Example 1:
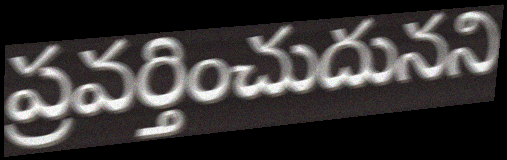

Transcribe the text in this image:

ప్రవర్తించుదునని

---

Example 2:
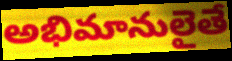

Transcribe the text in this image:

అభిమానులైతే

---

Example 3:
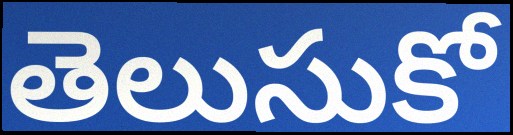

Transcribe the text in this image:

తెలుసుకో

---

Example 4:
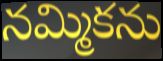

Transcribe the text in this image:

నమ్మికను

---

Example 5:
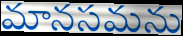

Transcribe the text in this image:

మానసమను